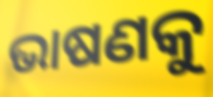
ଭାଷଣକୁ